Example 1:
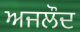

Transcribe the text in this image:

ਅਜਲੌਦ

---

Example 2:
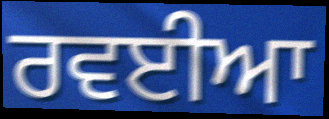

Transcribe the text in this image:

ਰਵਈਆ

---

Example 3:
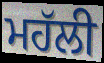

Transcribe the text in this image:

ਮਹੱਲੀ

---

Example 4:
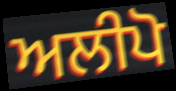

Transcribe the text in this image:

ਅਲੀਪੋ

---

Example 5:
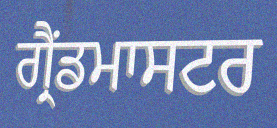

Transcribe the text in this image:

ਗ੍ਰੈਂਡਮਾਸਟਰ